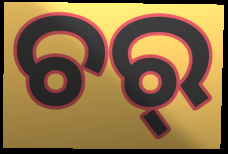
ଚର୍